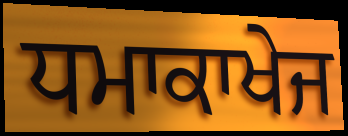
ਧਮਾਕਾਖੇਜ